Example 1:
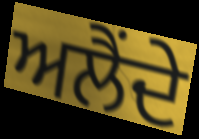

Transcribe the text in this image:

ਅਲੈਂਦੇ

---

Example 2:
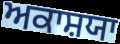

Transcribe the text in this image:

ਅਕਾਸ਼ਯਾ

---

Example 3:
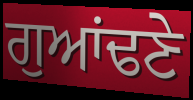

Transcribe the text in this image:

ਗੁਆਂਢਣੇ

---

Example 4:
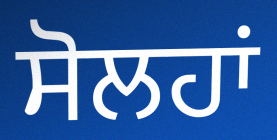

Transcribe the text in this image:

ਸੋਲਹਾਂ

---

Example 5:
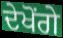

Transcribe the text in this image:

ਦੇਖੋਂਗੇ